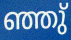
ഞ്ഞു്